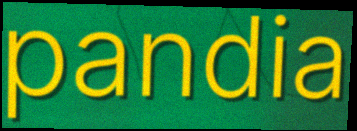
pandia